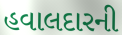
હવાલદારની